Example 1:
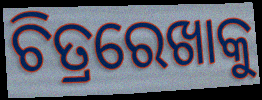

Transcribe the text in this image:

ଚିତ୍ରରେଖାକୁ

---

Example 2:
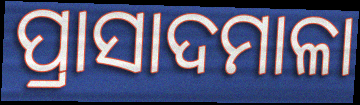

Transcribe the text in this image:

ପ୍ରାସାଦମାଳା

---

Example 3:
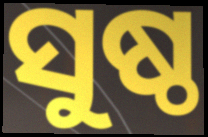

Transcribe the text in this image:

ସୁଷ୍ଠ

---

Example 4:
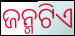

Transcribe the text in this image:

ଜନ୍ମଟିଏ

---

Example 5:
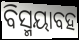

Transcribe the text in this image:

ବିସ୍ମୟାବହ